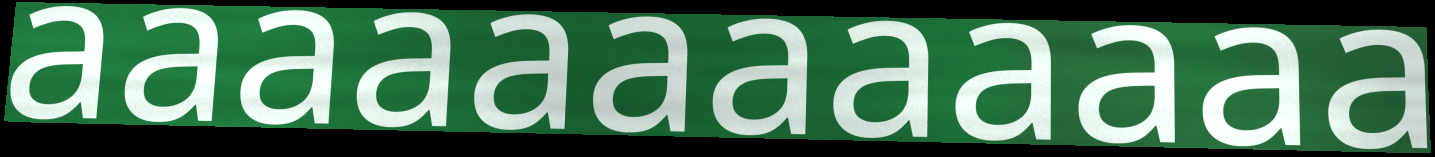
aaaaaaaaaaaa